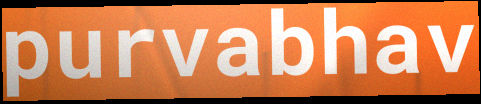
purvabhav